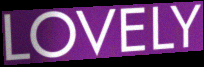
LOVELY